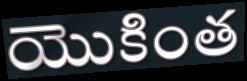
యొకింత